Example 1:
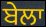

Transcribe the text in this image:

ਬੇਲਾ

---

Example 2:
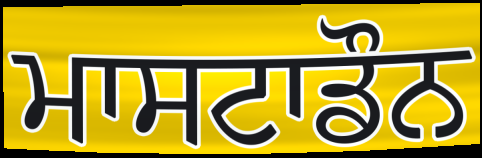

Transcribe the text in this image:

ਮਾਸਟਾਡੌਨ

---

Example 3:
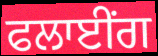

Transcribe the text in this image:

ਫਲਾਈਂਗ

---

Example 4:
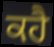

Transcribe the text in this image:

ਕਹੈ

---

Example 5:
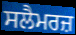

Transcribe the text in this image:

ਸਲੈਮਰਜ਼